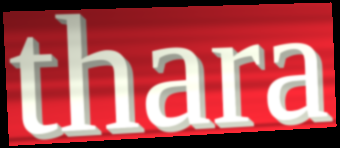
thara